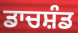
ਡਾਚਸ਼ੰਡ